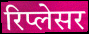
रिप्लेसर